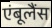
एंबूलैंस